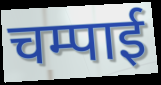
चम्‍पाई